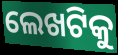
ଲେଖଟିକୁ